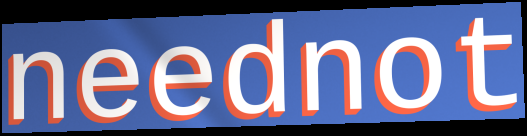
neednot